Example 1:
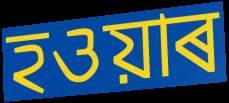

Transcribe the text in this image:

হওয়াৰ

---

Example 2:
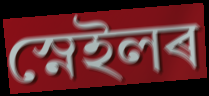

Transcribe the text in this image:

স্নেইলৰ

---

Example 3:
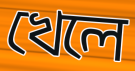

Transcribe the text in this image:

খেলে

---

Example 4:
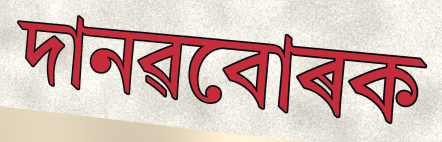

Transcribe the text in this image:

দানৱবোৰক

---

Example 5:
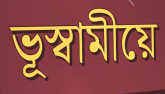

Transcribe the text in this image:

ভূস্বামীয়ে